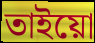
তাইয়ো